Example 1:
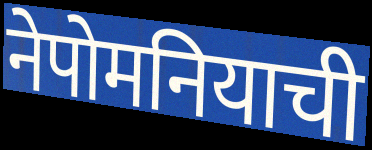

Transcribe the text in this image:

नेपोमनियाची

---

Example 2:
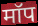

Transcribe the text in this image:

मॉप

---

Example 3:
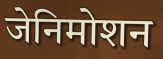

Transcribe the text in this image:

जेनिमोशन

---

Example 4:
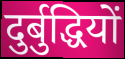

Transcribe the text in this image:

दुर्बुद्धियों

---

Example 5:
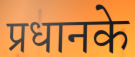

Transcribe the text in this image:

प्रधानके